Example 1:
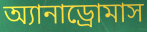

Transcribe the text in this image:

অ্যানাড্রোমাস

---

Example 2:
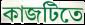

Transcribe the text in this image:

কাজটিতে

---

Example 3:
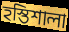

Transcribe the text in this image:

হস্তিশালা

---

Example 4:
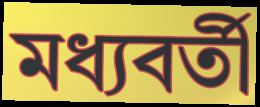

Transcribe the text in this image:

মধ্যবর্তী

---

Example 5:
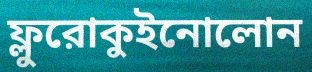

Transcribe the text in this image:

ফ্লুরোকুইনোলোন